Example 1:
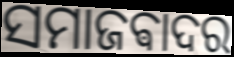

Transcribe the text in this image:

ସମାଜଵାଦର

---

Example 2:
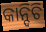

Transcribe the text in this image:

କାନ୍ଦିଚି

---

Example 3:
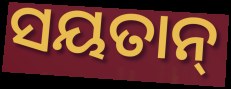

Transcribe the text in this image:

ସୟତାନ୍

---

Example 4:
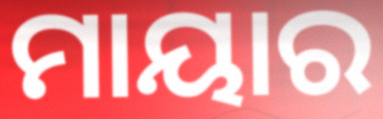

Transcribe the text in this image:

ମାୟାର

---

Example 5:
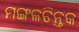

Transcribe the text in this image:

ମଙ୍ଗଳଚିନ୍ତକ